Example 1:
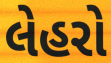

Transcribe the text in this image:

લેહરો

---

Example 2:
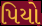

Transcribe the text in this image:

પિયો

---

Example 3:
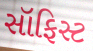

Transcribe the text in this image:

સૉફિસ્ટ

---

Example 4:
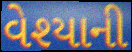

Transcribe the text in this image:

વેશ્યાની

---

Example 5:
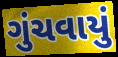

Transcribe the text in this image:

ગુંચવાયું